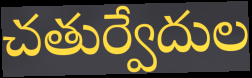
చతుర్వేదుల